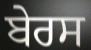
ਬੇਰਸ